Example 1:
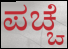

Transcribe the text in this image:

ಪಚ್ಚೆ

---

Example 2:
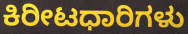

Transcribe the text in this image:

ಕಿರೀಟಧಾರಿಗಳು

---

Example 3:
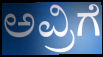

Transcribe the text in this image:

ಅವ್ರಿಗೆ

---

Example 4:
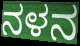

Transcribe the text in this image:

ನಳನ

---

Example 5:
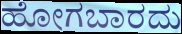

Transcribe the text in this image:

ಹೋಗಬಾರದು